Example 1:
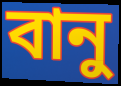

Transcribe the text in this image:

বানু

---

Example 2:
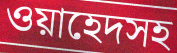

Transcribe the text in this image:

ওয়াহেদসহ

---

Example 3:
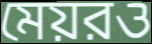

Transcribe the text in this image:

মেয়রও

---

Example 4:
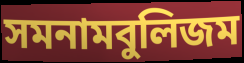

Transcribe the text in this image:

সমনামবুলিজম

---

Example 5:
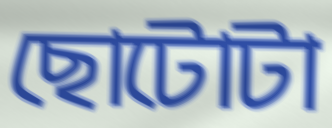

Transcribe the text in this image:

ছোটোটা